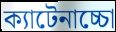
ক্যাটেনাচ্চো